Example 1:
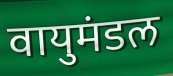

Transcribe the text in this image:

वायुमंडल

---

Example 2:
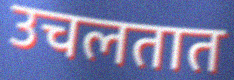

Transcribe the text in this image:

उचलतात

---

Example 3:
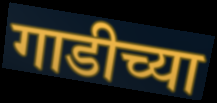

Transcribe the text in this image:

गाडीच्या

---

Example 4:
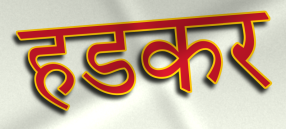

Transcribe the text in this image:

हडकर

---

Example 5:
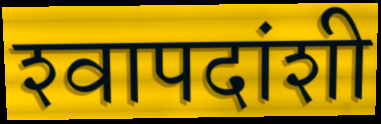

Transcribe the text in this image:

श्वापदांशी